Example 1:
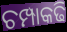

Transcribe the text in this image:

ଚମ୍ପାକଢି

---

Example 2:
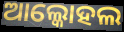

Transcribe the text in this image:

ଆଲ୍କୋହଲ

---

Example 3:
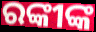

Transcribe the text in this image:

ରଙ୍କୀଙ୍କ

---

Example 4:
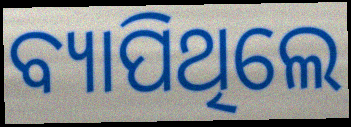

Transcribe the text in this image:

ବ୍ୟାପିଥିଲେ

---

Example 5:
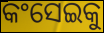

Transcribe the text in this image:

କଂସେଇକୁ